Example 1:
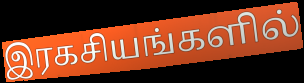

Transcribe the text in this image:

இரகசியங்களில்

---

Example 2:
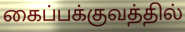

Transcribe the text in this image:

கைப்பக்குவத்தில்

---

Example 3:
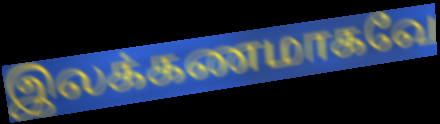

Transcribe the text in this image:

இலக்கணமாகவே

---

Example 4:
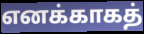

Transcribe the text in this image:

எனக்காகத்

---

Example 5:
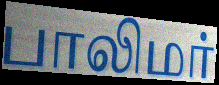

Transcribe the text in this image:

பாலிமர்